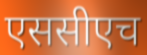
एससीएच